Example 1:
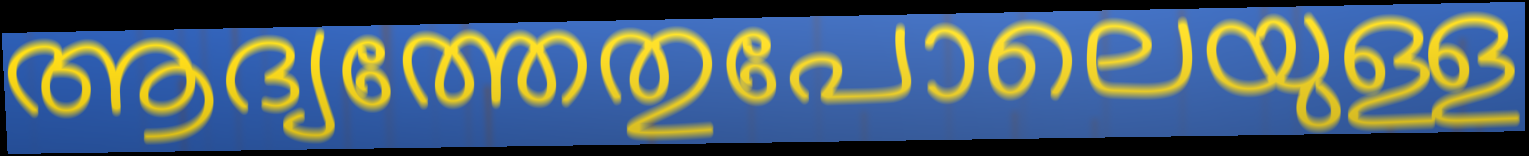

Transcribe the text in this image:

ആദ്യത്തേതുപോലെയുള്ള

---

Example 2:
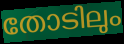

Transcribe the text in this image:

തോടിലും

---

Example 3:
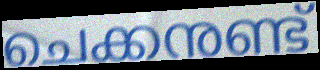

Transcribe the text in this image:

ചെക്കനുണ്ട്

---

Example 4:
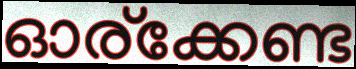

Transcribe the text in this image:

ഓര്ക്കേണ്ട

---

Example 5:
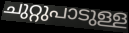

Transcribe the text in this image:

ചുറ്റുപാടുള്ള